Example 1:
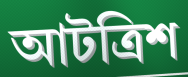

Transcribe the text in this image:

আটত্রিশ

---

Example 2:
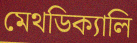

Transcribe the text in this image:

মেথডিক্যালি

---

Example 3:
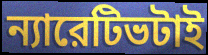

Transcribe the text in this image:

ন্যারেটিভটাই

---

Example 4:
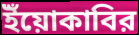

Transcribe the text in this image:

ইঁয়োকাবির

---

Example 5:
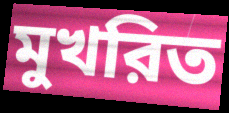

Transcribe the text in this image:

মুখরিত